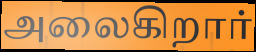
அலைகிறார்